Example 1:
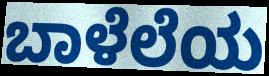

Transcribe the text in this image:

ಬಾಳೆಲೆಯ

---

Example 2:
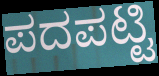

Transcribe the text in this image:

ಪದಪಟ್ಟಿ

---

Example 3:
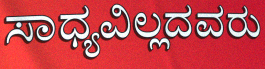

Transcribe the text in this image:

ಸಾಧ್ಯವಿಲ್ಲದವರು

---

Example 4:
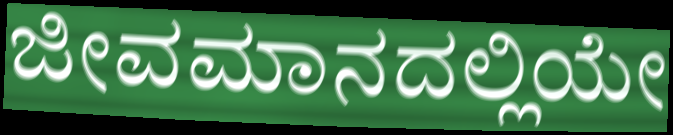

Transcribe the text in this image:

ಜೀವಮಾನದಲ್ಲಿಯೇ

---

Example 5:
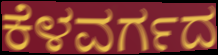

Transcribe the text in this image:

ಕೆಳವರ್ಗದ